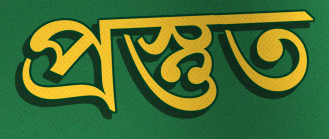
প্ৰস্তুত